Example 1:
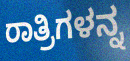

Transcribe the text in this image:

ರಾತ್ರಿಗಳನ್ನ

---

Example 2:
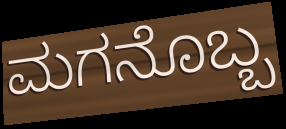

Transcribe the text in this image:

ಮಗನೊಬ್ಬ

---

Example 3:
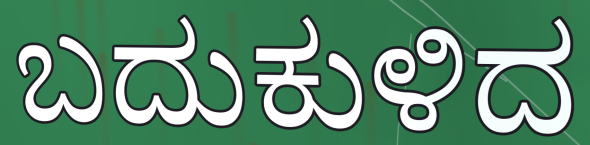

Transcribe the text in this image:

ಬದುಕುಳಿದ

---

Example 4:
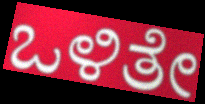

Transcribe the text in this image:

ಒಳಿತೇ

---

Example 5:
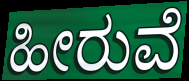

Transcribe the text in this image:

ಹೀರುವೆ